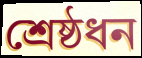
শ্রেষ্ঠধন